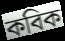
কবিক